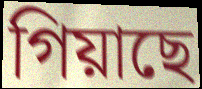
গিয়াছে